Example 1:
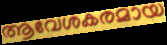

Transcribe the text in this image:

ആവേശകരമായ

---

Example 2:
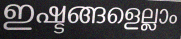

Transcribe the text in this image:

ഇഷ്ടങ്ങളെല്ലാം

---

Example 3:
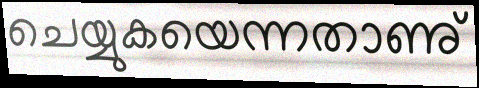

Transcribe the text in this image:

ചെയ്യുകയെന്നതാണു്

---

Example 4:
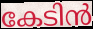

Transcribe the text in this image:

കേടിൻ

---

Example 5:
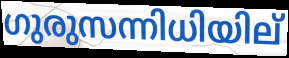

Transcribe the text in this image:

ഗുരുസന്നിധിയില്